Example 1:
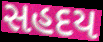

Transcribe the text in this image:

સહદય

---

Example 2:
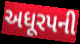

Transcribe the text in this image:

અધૂરપની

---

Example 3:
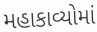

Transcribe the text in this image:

મહાકાવ્યોમાં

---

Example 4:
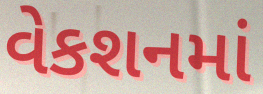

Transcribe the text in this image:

વેકશનમાં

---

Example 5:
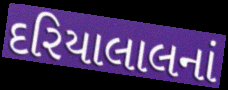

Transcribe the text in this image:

દરિયાલાલનાં